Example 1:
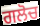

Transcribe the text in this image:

ਗਲੋਚ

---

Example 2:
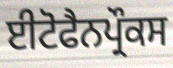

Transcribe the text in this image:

ਈਟੋਫੈਨਪ੍ਰੌਕਸ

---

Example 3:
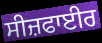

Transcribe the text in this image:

ਸੀਜ਼ਫਾਈਰ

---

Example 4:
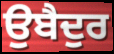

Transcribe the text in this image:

ਉਬੈਦੁਰ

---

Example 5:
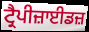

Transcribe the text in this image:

ਟ੍ਰੈਪੀਜ਼ਾਈਡਜ਼